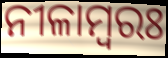
ନୀଳାମ୍ବରଃ